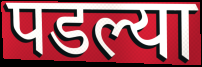
पडल्या